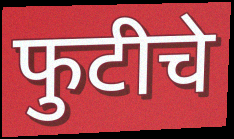
फुटीचे